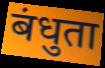
बंधुता